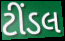
ટીંડલ